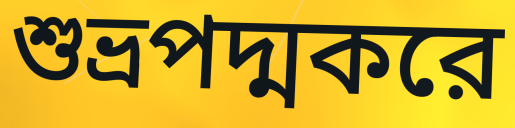
শুভ্রপদ্মকরে